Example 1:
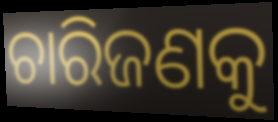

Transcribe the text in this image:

ଚାରିଜଣକୁ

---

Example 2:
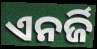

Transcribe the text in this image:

ଏନର୍ଜି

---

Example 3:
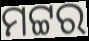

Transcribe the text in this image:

ମଟ୍ଟର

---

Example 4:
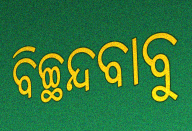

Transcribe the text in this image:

ବିଚ୍ଛନ୍ଦବାବୁ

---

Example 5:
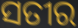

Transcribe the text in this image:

ସତୀର